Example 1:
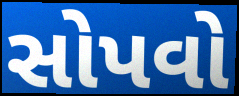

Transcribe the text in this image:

સોપવો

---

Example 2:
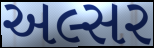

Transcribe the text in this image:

અલ્સર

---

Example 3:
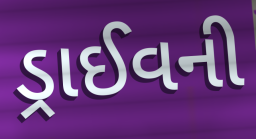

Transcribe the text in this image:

ડ્રાઈવની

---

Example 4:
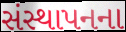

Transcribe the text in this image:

સંસ્થાપનના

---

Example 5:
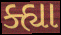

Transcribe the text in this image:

ક્હ્યા